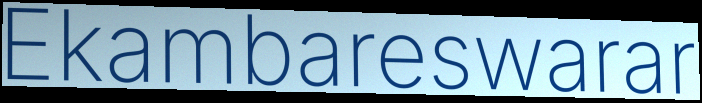
Ekambareswarar